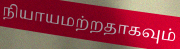
நியாயமற்றதாகவும்